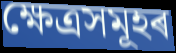
ক্ষেত্ৰসমূহৰ